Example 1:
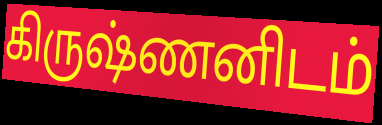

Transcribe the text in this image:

கிருஷ்ணனிடம்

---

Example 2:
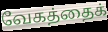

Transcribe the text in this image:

வேகத்தைக்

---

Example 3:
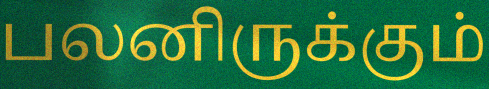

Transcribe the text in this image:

பலனிருக்கும்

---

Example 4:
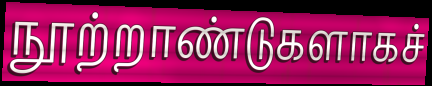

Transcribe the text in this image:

நூற்றாண்டுகளாகச்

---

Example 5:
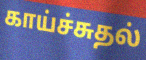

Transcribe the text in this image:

காய்ச்சுதல்